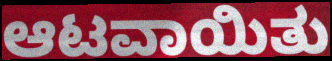
ಆಟವಾಯಿತು